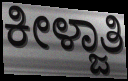
ಕೀಳ್ಜಾತಿ